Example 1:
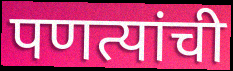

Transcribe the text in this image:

पणत्यांची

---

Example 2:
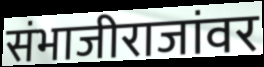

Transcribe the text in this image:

संभाजीराजांवर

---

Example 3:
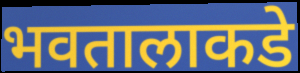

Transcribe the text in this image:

भवतालाकडे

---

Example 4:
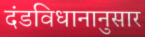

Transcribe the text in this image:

दंडविधानानुसार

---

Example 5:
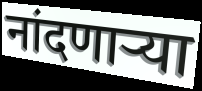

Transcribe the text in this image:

नांदणार्‍या